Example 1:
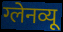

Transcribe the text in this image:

ग्लेनव्यू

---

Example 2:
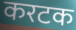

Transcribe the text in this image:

करटक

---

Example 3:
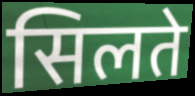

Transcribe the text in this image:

सिलते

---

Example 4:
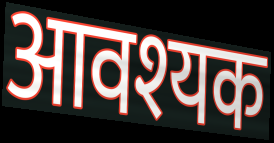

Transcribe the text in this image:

आवश्‍यक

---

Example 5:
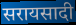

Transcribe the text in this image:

सरायसादी